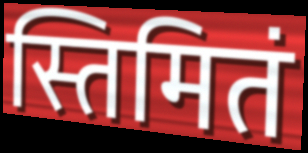
स्तिमितं